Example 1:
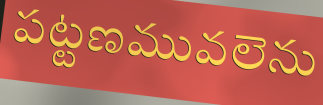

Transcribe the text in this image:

పట్టణమువలెను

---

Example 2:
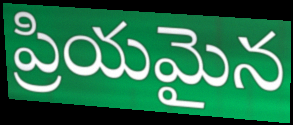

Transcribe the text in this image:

ప్రియమైన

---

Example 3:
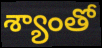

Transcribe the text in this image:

శ్యాంతో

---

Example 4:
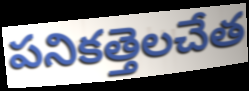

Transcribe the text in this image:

పనికత్తెలచేత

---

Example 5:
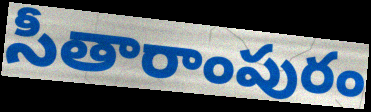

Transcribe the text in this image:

సీతారాంపురం